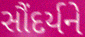
સૌંદર્યને